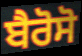
ਬੈਰੋਸੋ